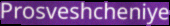
Prosveshcheniye